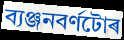
ব্যঞ্জনবৰ্ণটোৰ